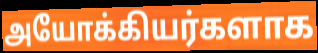
அயோக்கியர்களாக